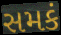
સમકં